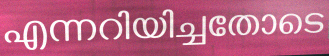
എന്നറിയിച്ചതോടെ